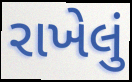
રાખેલું